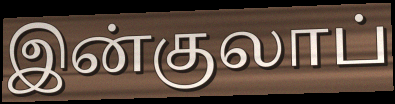
இன்குலாப்